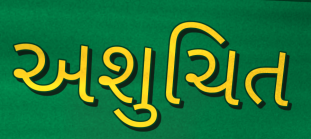
અશુચિત